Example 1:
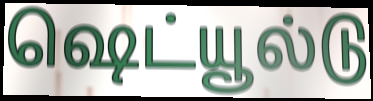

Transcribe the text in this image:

ஷெட்யூல்டு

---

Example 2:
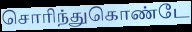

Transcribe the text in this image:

சொரிந்துகொண்டே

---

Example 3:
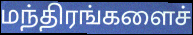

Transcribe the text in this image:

மந்திரங்களைச்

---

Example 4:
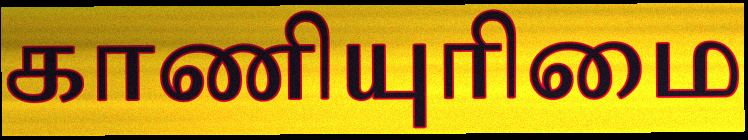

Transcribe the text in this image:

காணியுரிமை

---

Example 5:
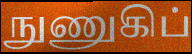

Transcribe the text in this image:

நுணுகிப்